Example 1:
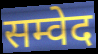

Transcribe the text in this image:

सम्वेद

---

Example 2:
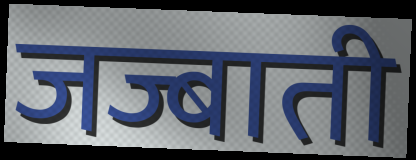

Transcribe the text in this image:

जज्‍बाती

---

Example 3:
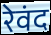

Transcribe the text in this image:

रेवंद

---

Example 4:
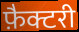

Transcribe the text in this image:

फ़ैक्टरी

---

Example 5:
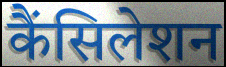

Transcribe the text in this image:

कैंसिलेशन